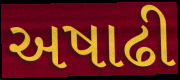
અષાઢી